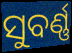
ସୁବର୍ଣ୍ଣ